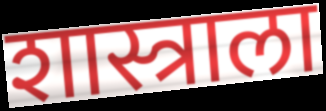
शास्त्राला